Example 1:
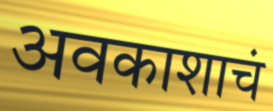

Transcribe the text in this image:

अवकाशाचं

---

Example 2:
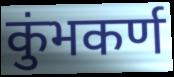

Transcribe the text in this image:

कुंभकर्ण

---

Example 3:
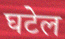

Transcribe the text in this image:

घटेल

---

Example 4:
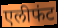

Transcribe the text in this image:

एलीफंट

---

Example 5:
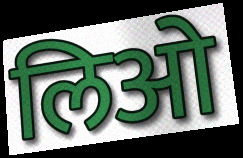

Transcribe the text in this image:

लिओ